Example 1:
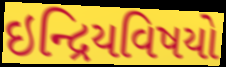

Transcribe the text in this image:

ઇન્દ્રિયવિષયો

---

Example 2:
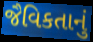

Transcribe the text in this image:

જૈવિકતાનું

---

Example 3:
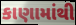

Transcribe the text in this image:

કાણામાંથી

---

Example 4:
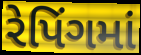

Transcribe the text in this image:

રેપિંગમાં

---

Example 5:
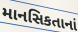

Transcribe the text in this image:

માનસિકતાનાં